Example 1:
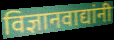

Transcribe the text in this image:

विज्ञानवाद्यांनी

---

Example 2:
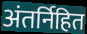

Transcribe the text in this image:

अंतर्निहित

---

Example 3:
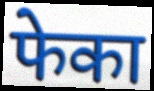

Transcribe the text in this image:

फेका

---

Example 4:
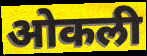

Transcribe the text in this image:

ओकली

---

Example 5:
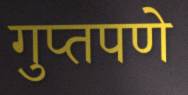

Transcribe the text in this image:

गुप्तपणे